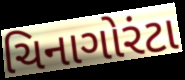
ચિનાગોરંટા